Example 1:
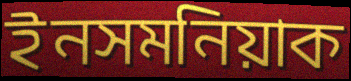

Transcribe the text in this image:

ইনসমনিয়াক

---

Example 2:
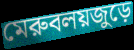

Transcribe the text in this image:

মেরুবলয়জুড়ে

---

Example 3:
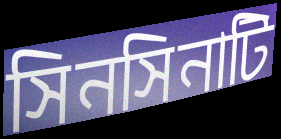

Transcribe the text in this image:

সিনসিনাটি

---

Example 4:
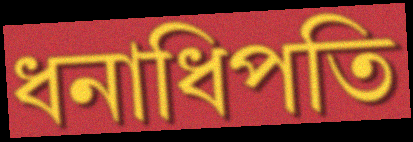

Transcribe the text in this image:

ধনাধিপতি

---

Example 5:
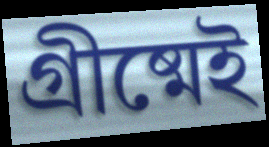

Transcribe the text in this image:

গ্রীষ্মেই